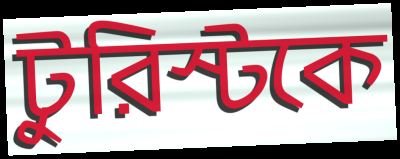
টুরিস্টকে